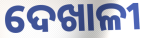
ଦେଖାଳୀ